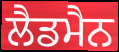
ਲੈਡਮੈਨ